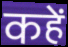
कहें